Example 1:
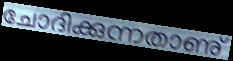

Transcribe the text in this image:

ചോദിക്കുന്നതാണു്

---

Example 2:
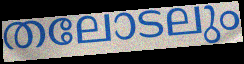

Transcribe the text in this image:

തലോടലും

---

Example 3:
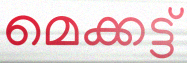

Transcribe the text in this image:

മെക്കട്ട്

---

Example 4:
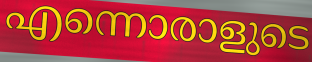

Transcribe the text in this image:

എന്നൊരാളുടെ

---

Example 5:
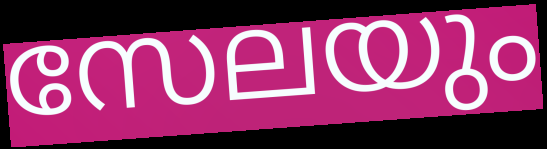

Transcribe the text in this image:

സേലയും